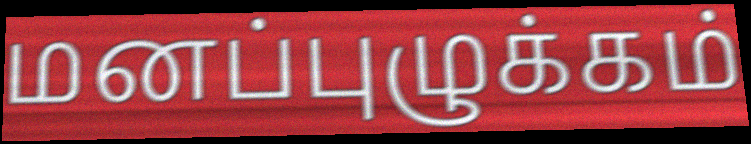
மனப்புழுக்கம்